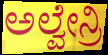
ಅಲ್ವೇನ್ರಿ